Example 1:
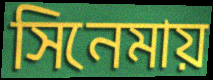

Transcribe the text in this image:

সিনেমায়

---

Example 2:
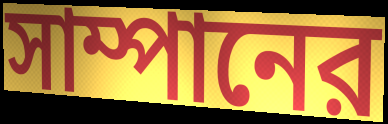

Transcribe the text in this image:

সাম্পানের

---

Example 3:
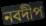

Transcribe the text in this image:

নবদীপ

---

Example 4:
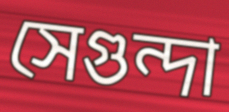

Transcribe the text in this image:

সেগুন্দা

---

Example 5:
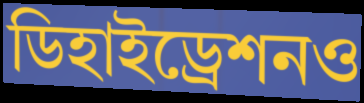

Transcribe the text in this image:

ডিহাইড্রেশনও